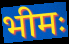
भीमः